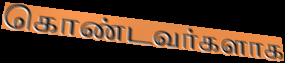
கொண்டவர்களாக